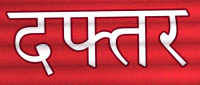
दफ्तर